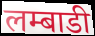
लम्बाडी